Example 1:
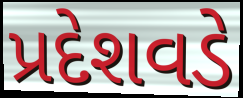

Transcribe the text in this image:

પ્રદેશવડે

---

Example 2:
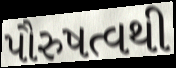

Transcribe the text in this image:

પૌરુષત્વથી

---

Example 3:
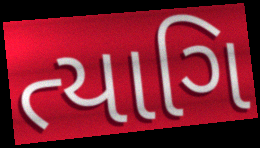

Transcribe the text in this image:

ત્યાગિ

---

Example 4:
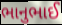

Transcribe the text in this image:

ભાનુભાઈ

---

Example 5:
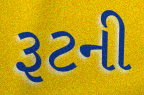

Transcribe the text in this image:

રૂટની